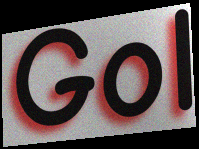
Gol